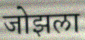
जोझला